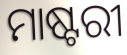
ମାଷ୍ଟରୀ